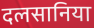
दलसानिया